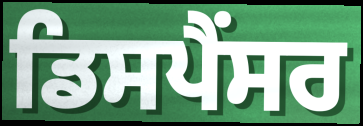
ਡਿਸਪੈਂਸਰ